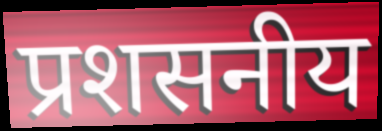
प्रशसनीय